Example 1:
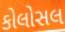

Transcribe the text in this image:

કોલોસલ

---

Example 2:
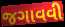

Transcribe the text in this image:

જગાવવી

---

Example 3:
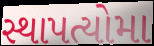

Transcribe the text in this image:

સ્થાપત્યોમા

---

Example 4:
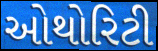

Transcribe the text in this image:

ઓથોરિટી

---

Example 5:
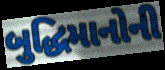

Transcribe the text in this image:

બુદ્ધિમાનોની